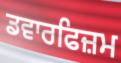
ਡਵਾਰਫਿਜ਼ਮ